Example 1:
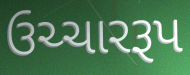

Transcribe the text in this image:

ઉચ્ચારરૂપ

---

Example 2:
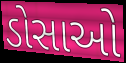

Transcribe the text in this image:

ડોસાઓ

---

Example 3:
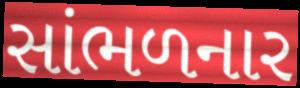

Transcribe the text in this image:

સાંભળનાર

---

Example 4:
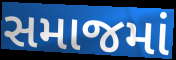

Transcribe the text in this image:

સમાજમાં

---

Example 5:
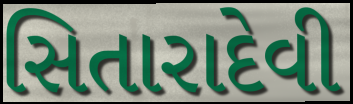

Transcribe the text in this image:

સિતારાદેવી